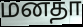
மனதா